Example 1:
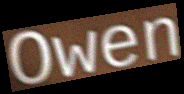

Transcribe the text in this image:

Owen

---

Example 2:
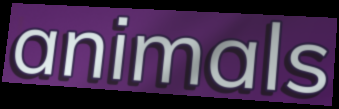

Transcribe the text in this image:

animals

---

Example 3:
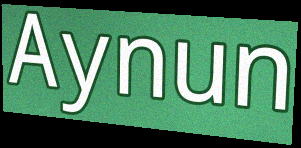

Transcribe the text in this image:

Aynun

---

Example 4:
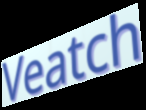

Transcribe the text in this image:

Veatch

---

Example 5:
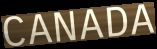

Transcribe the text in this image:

CANADA